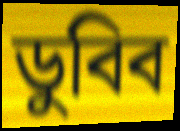
ডুবিব